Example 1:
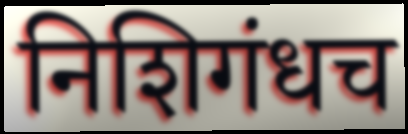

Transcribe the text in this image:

निशिगंधच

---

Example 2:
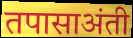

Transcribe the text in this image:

तपासाअंती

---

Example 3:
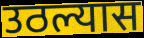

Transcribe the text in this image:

उठल्यास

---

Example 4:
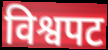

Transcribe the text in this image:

विश्वपट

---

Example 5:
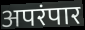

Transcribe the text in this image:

अपरंपार